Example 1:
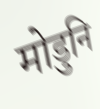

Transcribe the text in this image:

मोडुनि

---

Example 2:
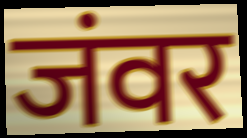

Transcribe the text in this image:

जंवर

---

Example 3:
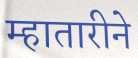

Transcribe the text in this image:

म्हातारीने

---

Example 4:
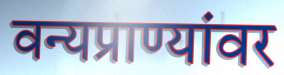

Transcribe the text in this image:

वन्यप्राण्यांवर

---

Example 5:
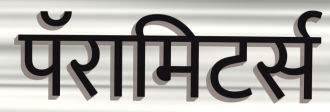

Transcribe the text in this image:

पॅरामिटर्स